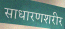
साधारणशरीर